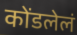
कोंडलेलं